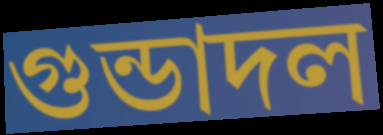
গুন্ডাদল